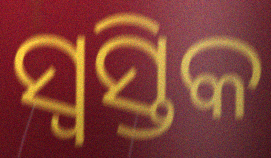
ସ୍ୱସ୍ତିକ